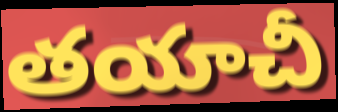
తయాచీ